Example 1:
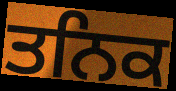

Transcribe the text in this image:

ਤਨਿਕ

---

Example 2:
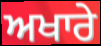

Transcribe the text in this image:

ਅਖਾਰੇ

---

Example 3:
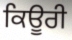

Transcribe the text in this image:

ਕਿਊਰੀ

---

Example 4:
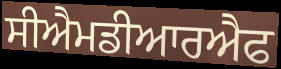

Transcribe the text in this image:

ਸੀਐਮਡੀਆਰਐਫ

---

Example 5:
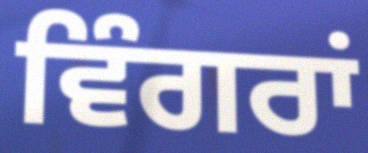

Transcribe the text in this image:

ਵਿੰਗਰਾਂ